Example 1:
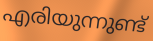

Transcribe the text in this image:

എരിയുന്നുണ്ട്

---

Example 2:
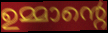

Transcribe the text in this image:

ഉമ്മാന്റെ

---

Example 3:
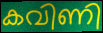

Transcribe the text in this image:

കവിണി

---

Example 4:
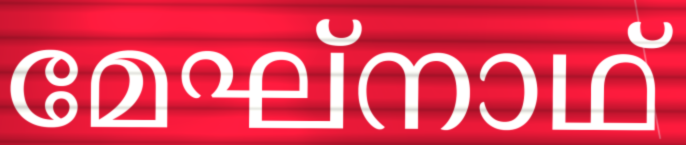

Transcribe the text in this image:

മേഘ്നാഥ്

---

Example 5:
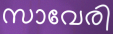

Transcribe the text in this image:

സാവേരി